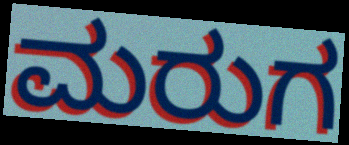
ಮರುಗ